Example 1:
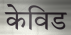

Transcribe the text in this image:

केविड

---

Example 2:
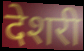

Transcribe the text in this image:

देशरी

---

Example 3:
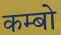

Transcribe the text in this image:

कम्बो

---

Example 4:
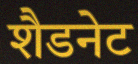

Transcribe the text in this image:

शैडनेट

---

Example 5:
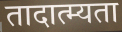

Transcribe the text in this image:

तादात्म्यता